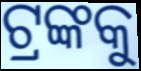
ଟ୍ରଙ୍କକୁ